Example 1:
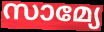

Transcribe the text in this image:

സാമ്യേ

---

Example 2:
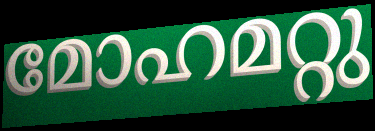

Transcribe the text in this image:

മോഹമറ്റു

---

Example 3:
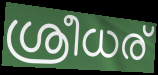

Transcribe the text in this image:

ശ്രീധര്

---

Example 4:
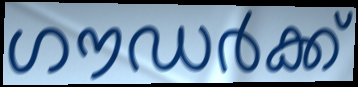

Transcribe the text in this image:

ഗൗഡർക്ക്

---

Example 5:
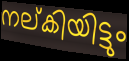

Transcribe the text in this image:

നല്കിയിട്ടും